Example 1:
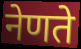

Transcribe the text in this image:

नेणते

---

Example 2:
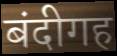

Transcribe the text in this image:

बंदीगह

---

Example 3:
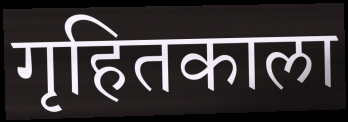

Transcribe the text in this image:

गृहितकाला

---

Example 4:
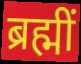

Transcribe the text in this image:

ब्रह्मीं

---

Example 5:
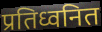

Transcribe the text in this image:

प्रतिध्वनित